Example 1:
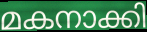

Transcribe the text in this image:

മകനാക്കി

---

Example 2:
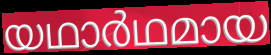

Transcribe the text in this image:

യഥാർഥമായ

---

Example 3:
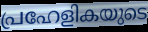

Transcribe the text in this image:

പ്രഹേളികയുടെ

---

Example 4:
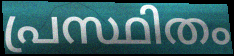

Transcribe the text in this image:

പ്രസ്ഥിതം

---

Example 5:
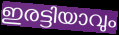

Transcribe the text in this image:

ഇരട്ടിയാവും